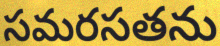
సమరసతను